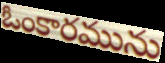
ఓంకారమును